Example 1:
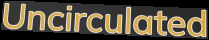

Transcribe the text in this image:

Uncirculated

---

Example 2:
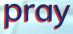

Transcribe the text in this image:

pray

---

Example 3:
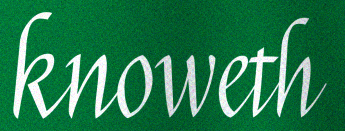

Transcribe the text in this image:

knoweth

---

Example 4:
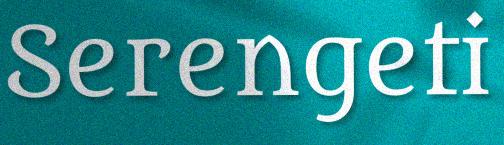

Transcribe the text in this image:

Serengeti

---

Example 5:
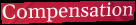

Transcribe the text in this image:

Compensation